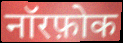
नॉरफ़ोक